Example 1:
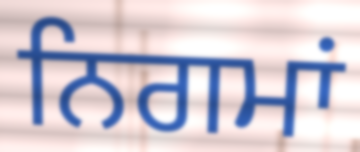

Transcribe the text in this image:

ਨਿਗਮਾਂ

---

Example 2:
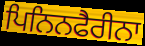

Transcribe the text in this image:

ਪਿਨਿਨਫੈਰੀਨਾ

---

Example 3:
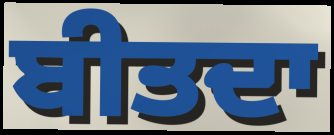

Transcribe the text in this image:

ਬੀਤਦਾ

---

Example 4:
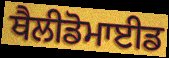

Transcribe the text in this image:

ਥੈਲੀਡੋਮਾਈਡ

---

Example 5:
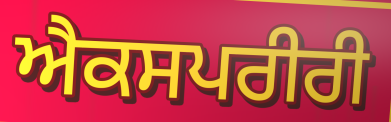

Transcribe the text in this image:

ਐਕਸਪਰੀਰੀ